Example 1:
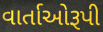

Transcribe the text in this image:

વાર્તાઓરૂપી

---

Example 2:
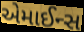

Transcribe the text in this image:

એમાઈન્સ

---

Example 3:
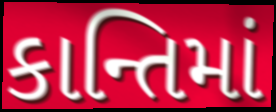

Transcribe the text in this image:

કાન્તિમાં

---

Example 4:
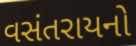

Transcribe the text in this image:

વસંતરાયનો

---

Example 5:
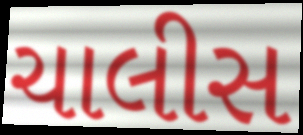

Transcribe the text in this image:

ચાલીસ